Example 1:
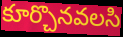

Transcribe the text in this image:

కూర్చొనవలసి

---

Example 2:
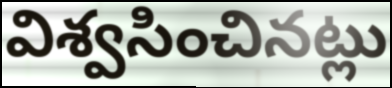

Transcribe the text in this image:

విశ్వసించినట్లు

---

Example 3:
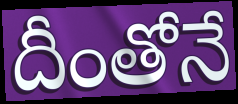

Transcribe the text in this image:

దీంతోనే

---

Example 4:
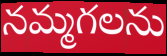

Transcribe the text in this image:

నమ్మగలను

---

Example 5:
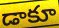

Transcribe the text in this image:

డాకూ